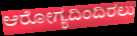
ಆರೋಗ್ಯದಿಂದಿರಲು